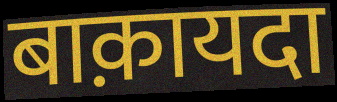
बाक़ायदा